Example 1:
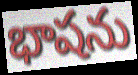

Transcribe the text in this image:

భాషను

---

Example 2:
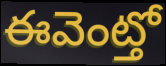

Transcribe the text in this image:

ఈవెంట్తో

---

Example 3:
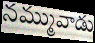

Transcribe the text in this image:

నమ్మువాడు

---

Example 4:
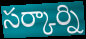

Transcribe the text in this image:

సర్కార్ని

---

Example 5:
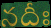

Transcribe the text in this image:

నదీః